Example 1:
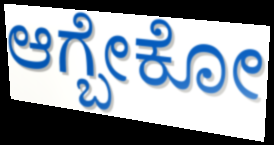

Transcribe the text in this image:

ಆಗ್ಬೇಕೋ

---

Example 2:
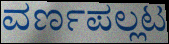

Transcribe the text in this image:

ವರ್ಣಪಲ್ಲಟ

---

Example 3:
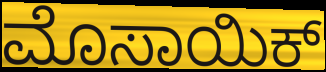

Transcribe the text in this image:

ಮೊಸಾಯಿಕ್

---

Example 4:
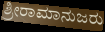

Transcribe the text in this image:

ಶ್ರೀರಾಮಾನುಜರು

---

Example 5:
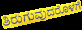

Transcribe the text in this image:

ತಿರುಗುವುದರೊಳಗೆ